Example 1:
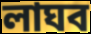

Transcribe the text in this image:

লাঘব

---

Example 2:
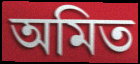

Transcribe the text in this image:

অমিত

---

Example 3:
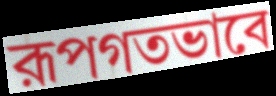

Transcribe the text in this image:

রূপগতভাবে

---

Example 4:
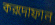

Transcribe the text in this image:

করদোফান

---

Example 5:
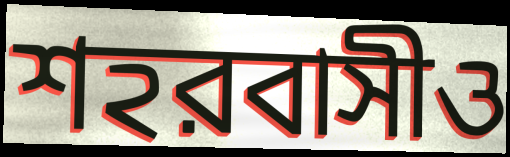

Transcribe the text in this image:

শহরবাসীও